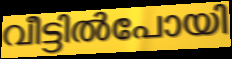
വീട്ടിൽപോയി